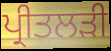
ਪ੍ਰੀਤਲੜੀ